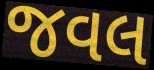
જવલ